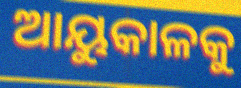
ଆୟୁକାଳକୁ